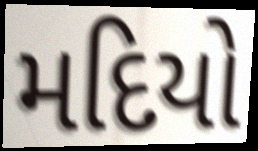
મદિયો